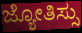
ಜ್ಯೋತಿಸ್ಸು